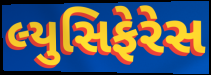
લ્યુસિફેરેસ